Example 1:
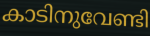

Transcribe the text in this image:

കാടിനുവേണ്ടി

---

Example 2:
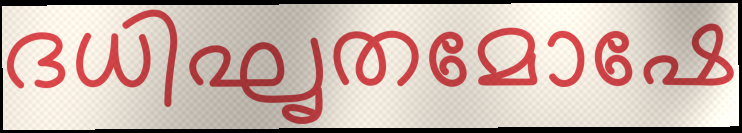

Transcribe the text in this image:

ദധിഘൃതമോഷേ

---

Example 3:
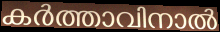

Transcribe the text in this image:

കർത്താവിനാൽ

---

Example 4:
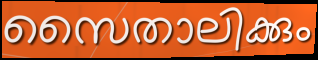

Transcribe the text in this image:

സൈതാലിക്കും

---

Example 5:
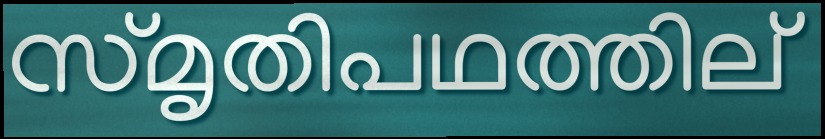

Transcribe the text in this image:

സ്മൃതിപഥത്തില്